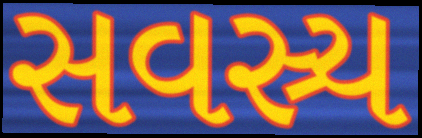
સવસ્ર્ય